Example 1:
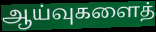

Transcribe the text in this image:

ஆய்வுகளைத்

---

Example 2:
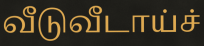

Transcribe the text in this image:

வீடுவீடாய்ச்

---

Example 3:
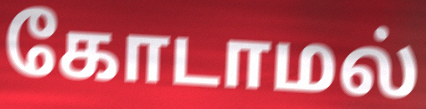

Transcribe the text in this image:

கோடாமல்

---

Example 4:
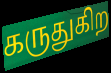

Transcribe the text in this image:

கருதுகிற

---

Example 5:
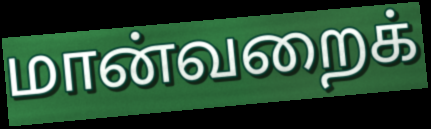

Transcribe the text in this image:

மான்வறைக்